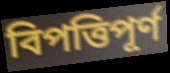
বিপত্তিপূর্ণ